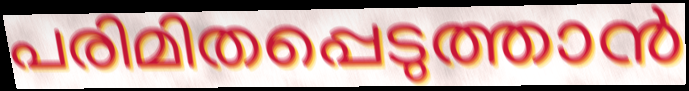
പരിമിതപ്പെടുത്താൻ